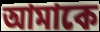
আমাকে